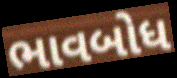
ભાવબોધ